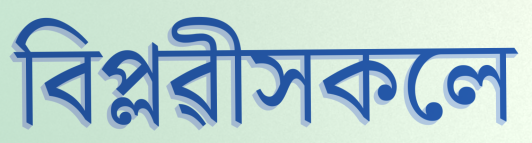
বিপ্লৱীসকলে